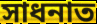
সাধনাত